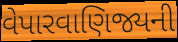
વેપારવાણિજ્યની